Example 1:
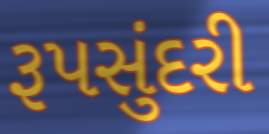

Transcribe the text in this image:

રૂપસુંદરી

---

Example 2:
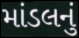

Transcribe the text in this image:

માંડલનું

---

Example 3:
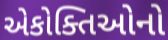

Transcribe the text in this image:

એકોક્તિઓનો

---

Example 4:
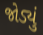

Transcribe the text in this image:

જોડ્યું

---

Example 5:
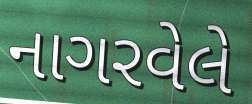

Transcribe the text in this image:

નાગરવેલે